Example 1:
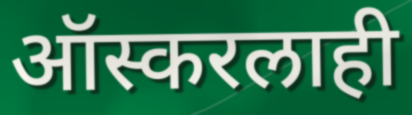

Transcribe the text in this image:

ऑस्करलाही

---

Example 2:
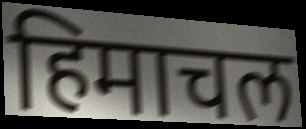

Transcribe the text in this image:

हिमाचल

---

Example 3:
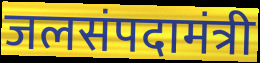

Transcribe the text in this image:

जलसंपदामंत्री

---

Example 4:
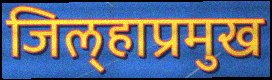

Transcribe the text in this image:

जिल्हाप्रमुख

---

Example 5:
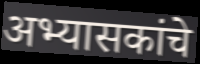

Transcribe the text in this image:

अभ्यासकांचे